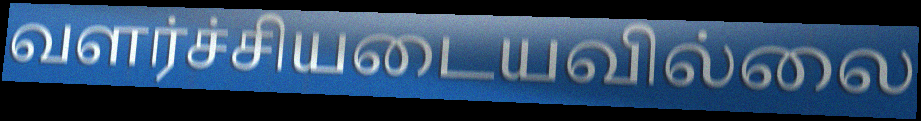
வளர்ச்சியடையவில்லை